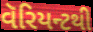
વૅરિયન્ટથી